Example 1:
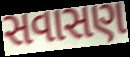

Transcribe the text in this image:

સવાસણ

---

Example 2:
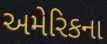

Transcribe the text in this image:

અમેરિકના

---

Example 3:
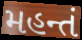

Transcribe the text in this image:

મહન્તં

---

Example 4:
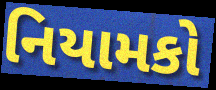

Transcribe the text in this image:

નિયામકો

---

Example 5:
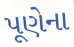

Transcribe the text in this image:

પૂણેના